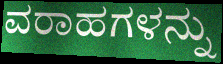
ವರಾಹಗಳನ್ನು